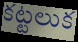
కట్టలుక